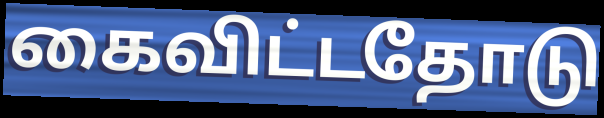
கைவிட்டதோடு